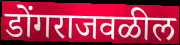
डोंगराजवळील